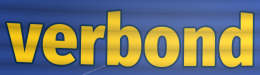
verbond